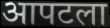
आपटला